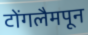
टोंगलैमपून